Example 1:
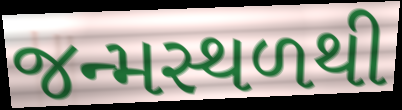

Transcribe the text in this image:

જન્મસ્થળથી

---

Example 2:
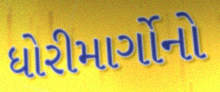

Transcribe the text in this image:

ધોરીમાર્ગોનો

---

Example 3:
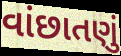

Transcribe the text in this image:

વાંછાતણું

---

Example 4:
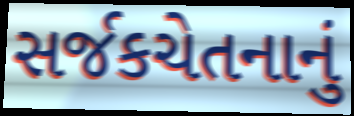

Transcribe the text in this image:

સર્જકચેતનાનું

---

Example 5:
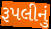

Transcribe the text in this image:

રૂપલીનું